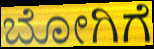
ಬೋಗಿಗೆ